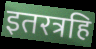
इतरत्रहि